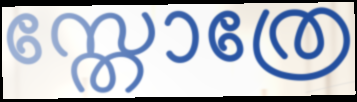
സ്തോത്രേ